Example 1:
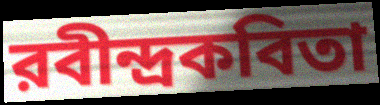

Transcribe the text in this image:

রবীন্দ্রকবিতা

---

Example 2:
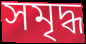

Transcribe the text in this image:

সমৃদ্ধ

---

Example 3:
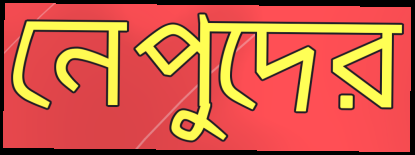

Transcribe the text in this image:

নেপুদের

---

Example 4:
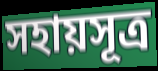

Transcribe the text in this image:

সহায়সূত্র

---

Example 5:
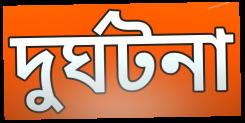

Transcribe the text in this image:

দুর্ঘটনা